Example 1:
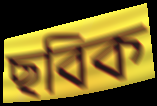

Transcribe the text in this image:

ছবিক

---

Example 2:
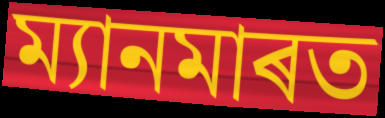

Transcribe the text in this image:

ম্যানমাৰত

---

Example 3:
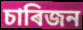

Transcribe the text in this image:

চাৰিজন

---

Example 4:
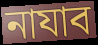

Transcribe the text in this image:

নাযাব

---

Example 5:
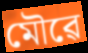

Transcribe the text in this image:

মৌৱে